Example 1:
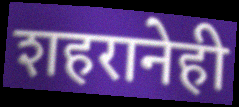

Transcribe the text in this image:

शहरानेही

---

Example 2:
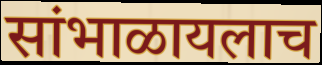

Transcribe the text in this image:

सांभाळायलाच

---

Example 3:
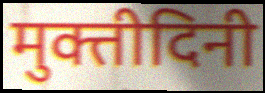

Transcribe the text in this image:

मुक्तीदिनी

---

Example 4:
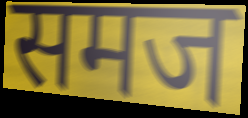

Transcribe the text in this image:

समज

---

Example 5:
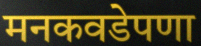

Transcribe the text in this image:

मनकवडेपणा